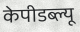
केपीडब्ल्यू